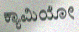
ಕ್ಯಾಮಿಯೋ